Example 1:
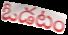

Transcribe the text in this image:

ఓడటం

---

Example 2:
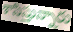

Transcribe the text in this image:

శాసిస్తున్నారు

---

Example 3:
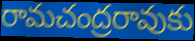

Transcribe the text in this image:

రామచంద్రరావుకు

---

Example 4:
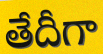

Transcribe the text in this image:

తేదీగా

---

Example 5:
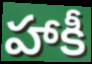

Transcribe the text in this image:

హాకీ